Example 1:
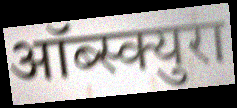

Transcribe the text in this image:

ऑब्स्क्युरा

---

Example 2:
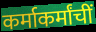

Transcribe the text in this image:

कर्माकर्मांचीं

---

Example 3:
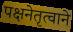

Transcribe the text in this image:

पक्षनेतृत्वाने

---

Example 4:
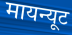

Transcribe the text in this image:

मायन्यूट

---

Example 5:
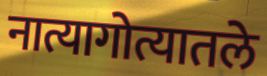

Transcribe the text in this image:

नात्यागोत्यातले